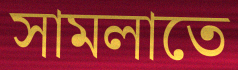
সামলাতে